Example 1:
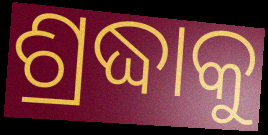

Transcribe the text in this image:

ଶ୍ରଦ୍ଧାକୁ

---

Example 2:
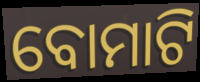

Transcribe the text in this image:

ବୋମାଟି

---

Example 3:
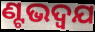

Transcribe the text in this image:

ଣ୍ଟଭଦ୍ଵଯ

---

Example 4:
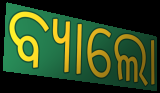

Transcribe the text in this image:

ବ୍ୟାଲୋ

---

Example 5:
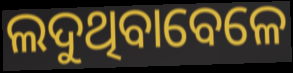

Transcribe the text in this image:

ଲଦୁଥିବାବେଳେ